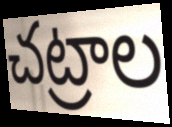
చట్రాల